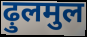
ढ़ुलमुल